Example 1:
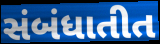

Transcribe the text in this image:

સંબંધાતીત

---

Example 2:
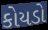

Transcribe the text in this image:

કોયડો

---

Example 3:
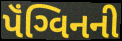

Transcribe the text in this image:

પૅંગ્વિનની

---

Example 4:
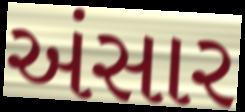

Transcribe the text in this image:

અંસાર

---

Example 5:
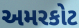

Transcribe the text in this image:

અમરકોટ